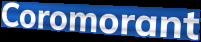
Coromorant